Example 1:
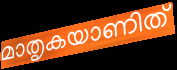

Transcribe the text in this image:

മാതൃകയാണിത്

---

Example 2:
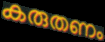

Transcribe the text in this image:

കരുതണം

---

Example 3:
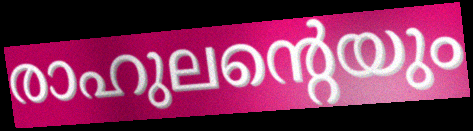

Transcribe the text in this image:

രാഹുലന്റെയും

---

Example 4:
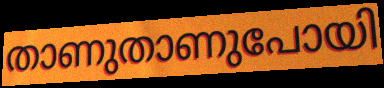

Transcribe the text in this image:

താണുതാണുപോയി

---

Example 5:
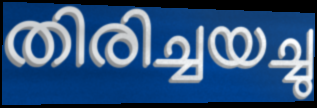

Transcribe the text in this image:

തിരിച്ചയച്ചു